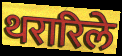
थरारिले